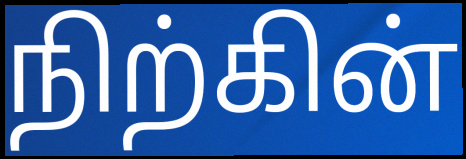
நிற்கின்